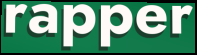
rapper